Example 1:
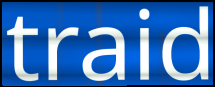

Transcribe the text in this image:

traid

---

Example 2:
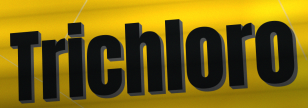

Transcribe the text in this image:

Trichloro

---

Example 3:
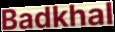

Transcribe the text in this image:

Badkhal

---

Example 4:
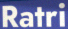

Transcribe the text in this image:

Ratri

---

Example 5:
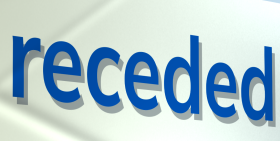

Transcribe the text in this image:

receded